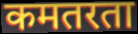
कमतरता